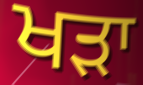
ਖਡ਼ਾ